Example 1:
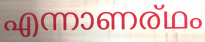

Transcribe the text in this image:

എന്നാണര്ഥം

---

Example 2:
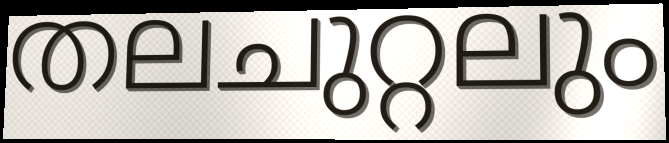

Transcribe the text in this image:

തലചുറ്റലും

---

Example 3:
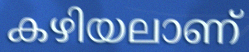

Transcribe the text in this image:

കഴിയലാണ്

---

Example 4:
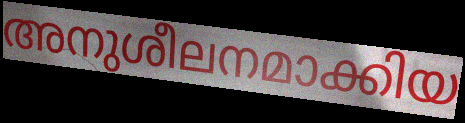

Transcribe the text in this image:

അനുശീലനമാക്കിയ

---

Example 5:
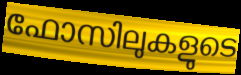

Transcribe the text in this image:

ഫോസിലുകളുടെ